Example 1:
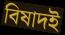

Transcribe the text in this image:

বিষাদই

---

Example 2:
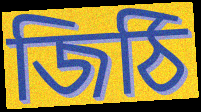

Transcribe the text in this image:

জিঠি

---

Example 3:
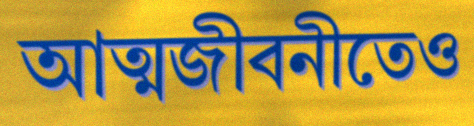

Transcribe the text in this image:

আত্মজীবনীতেও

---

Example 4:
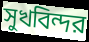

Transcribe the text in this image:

সুখবিন্দর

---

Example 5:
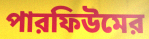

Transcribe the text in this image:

পারফিউমের